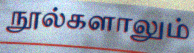
நூல்களாலும்